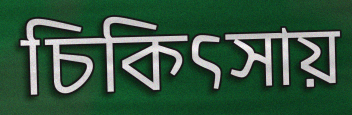
চিকিৎসায়